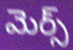
మెర్స్